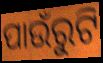
ପାଉଁରୁଟି